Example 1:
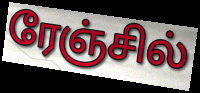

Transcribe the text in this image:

ரேஞ்சில்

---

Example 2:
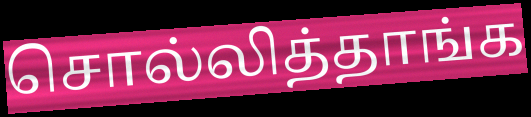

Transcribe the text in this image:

சொல்லித்தாங்க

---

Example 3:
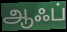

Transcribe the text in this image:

ஆஃப்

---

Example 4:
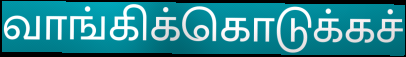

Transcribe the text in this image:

வாங்கிக்கொடுக்கச்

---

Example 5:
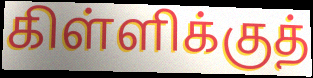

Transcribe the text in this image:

கிள்ளிக்குத்